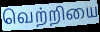
வெற்றியை